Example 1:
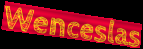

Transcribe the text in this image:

Wenceslas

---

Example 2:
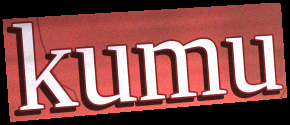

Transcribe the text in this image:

kumu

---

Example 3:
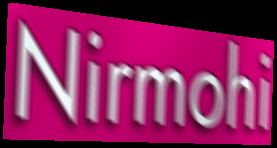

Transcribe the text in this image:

Nirmohi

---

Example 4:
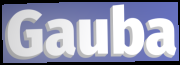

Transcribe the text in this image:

Gauba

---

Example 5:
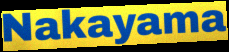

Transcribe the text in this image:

Nakayama